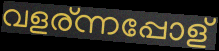
വളര്ന്നപ്പോള്